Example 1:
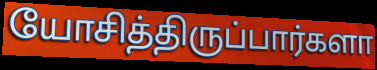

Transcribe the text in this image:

யோசித்திருப்பார்களா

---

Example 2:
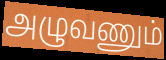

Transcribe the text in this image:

அழுவணும்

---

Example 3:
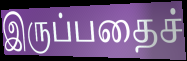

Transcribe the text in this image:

இருப்பதைச்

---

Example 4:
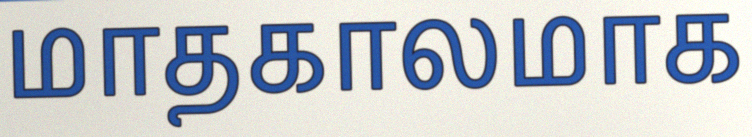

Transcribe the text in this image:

மாதகாலமாக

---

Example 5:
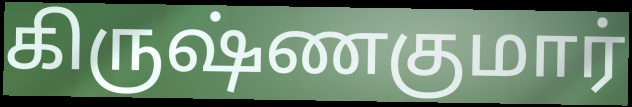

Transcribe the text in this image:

கிருஷ்ணகுமார்